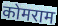
कोमराम